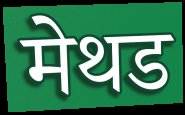
मेथड